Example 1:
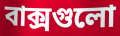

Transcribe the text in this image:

বাক্সগুলো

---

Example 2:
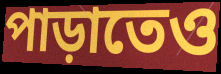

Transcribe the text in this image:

পাড়াতেও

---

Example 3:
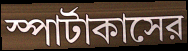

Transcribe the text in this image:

স্পার্টাকাসের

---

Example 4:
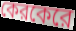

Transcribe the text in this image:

কেরকেরে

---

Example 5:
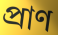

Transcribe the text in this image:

প্রাণ